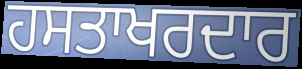
ਹਸਤਾਖਰਦਾਰ